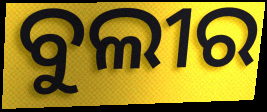
ବୁଲୀର